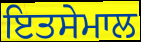
ਇਤਸੇਮਾਲ